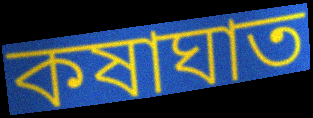
কষাঘাত